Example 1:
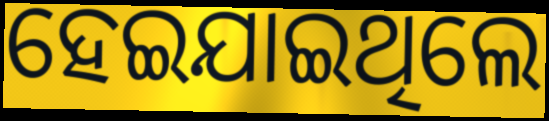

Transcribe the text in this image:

ହେଇଯାଇଥିଲେ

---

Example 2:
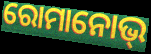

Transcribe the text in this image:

ରୋମାନୋଭ୍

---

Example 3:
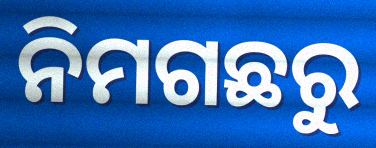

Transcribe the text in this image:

ନିମଗଛରୁ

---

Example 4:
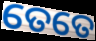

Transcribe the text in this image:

ତେତେ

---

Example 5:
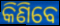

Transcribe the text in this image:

କିଣିବେ